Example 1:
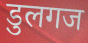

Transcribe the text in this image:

डुलगज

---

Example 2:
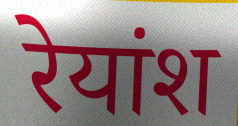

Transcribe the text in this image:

रेयांश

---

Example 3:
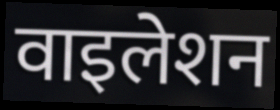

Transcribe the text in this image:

वाइलेशन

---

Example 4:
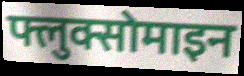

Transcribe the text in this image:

फ्लुक्सोमाइन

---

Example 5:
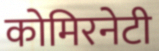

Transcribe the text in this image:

कोमिरनेटी